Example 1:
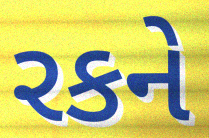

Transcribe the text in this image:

રકને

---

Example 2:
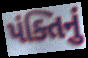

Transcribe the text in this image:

પંક્તિનું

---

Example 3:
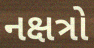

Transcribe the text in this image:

નક્ષત્રો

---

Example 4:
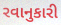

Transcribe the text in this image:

રવાનુકારી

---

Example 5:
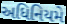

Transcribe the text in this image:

અધિનિયમે